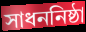
সাধননিষ্ঠা